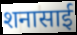
शनासाई